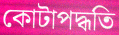
কোটাপদ্ধতি